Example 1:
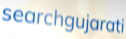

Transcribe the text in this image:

searchgujarati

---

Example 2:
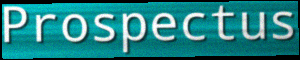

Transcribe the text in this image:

Prospectus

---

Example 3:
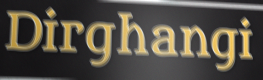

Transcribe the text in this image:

Dirghangi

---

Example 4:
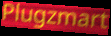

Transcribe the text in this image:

Plugzmart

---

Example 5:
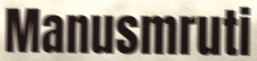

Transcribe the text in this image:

Manusmruti